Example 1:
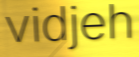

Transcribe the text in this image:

vidjeh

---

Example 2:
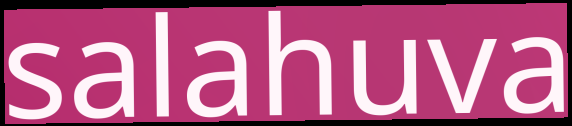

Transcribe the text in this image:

salahuva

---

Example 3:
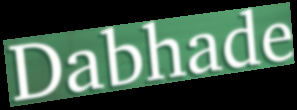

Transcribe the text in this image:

Dabhade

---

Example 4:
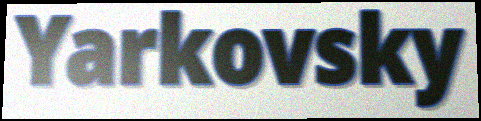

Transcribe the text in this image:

Yarkovsky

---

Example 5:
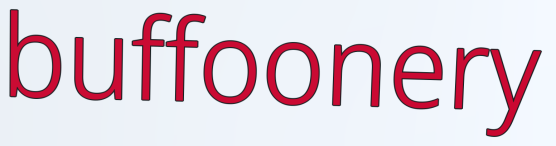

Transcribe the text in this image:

buffoonery